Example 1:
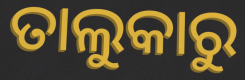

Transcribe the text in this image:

ତାଲୁକାରୁ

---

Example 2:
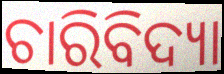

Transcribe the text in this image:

ଚାରିବିଦ୍ୟା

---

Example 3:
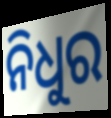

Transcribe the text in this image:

ନିଧୁର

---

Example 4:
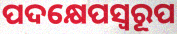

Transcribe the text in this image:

ପଦକ୍ଷେପସ୍ଵରୂପ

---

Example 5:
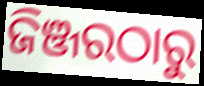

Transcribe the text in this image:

ଜିଞ୍ଜରଠାରୁ